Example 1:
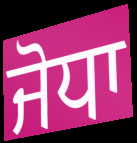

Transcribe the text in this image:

ਜੋਧਾ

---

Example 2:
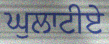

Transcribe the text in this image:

ਘੁਲਾਟੀਏ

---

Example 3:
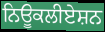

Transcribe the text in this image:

ਨਿਊਕਲੀਏਸ਼ਨ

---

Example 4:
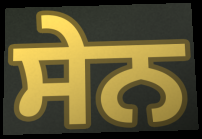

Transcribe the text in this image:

ਸੇਨ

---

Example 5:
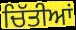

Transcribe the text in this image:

ਚਿੱਤੀਆਂ